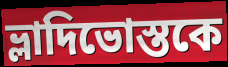
ভ্লাদিভোস্তকে